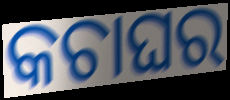
କଚାଘର